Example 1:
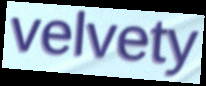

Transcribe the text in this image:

velvety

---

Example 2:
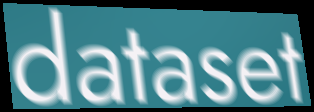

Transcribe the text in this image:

dataset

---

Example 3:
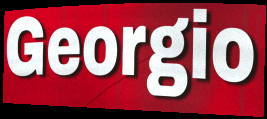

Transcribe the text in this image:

Georgio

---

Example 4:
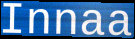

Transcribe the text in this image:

Innaa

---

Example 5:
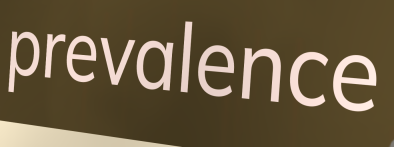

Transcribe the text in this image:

prevalence